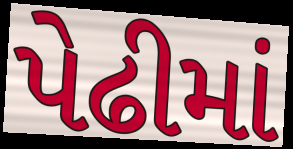
પેઢીમાં